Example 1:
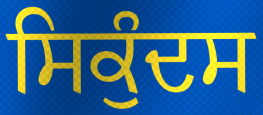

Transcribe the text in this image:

ਸਿਕੁੰਦਸ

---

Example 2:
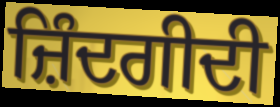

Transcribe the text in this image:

ਜ਼ਿੰਦਗੀਦੀ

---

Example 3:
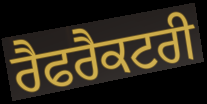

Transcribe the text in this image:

ਰੈਫਰੈਕਟਰੀ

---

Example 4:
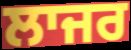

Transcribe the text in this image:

ਲਾਜਰ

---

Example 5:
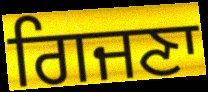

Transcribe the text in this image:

ਗਿਜਣਾ